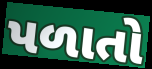
પળાતો